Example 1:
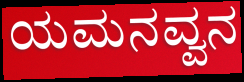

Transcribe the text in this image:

ಯಮನವ್ವನ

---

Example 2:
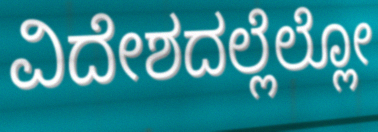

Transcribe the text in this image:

ವಿದೇಶದಲ್ಲೆಲ್ಲೋ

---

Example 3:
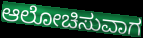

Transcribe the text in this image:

ಆಲೋಚಿಸುವಾಗ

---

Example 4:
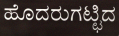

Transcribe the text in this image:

ಹೊದರುಗಟ್ಟಿದ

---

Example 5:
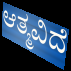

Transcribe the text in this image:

ಆತ್ಮವಿದೆ